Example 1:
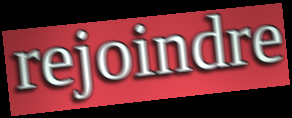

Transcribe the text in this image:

rejoindre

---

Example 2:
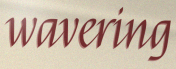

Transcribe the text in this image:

wavering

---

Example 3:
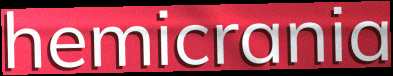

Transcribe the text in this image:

hemicrania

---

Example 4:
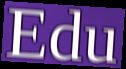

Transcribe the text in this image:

Edu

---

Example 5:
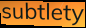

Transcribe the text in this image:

subtlety